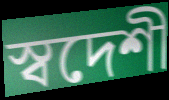
স্বদেশী